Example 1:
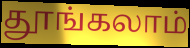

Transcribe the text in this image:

தூங்கலாம்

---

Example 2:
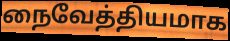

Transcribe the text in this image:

நைவேத்தியமாக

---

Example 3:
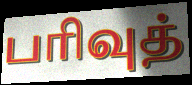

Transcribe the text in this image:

பரிவுத்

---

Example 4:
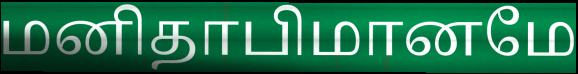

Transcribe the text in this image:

மனிதாபிமானமே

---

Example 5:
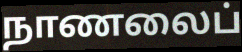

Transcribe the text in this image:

நாணலைப்